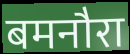
बमनौरा